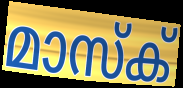
മാസ്ക്